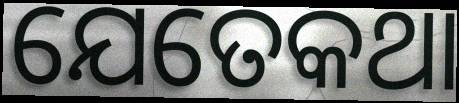
ଯେତେକଥା